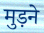
मुड़ने